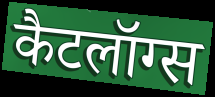
कैटलॉग्स